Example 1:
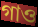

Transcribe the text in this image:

গাও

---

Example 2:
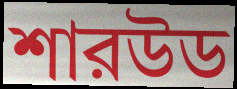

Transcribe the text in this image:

শারউড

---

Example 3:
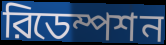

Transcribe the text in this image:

রিডেম্পশন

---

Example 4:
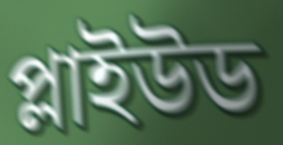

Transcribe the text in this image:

প্লাইউড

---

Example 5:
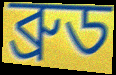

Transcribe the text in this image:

ব্রুড